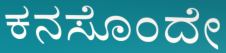
ಕನಸೊಂದೇ